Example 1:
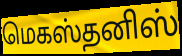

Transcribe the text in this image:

மெகஸ்தனிஸ்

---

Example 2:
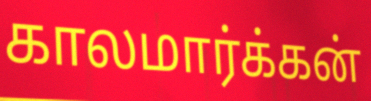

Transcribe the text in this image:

காலமார்க்கன்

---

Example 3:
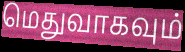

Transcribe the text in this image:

மெதுவாகவும்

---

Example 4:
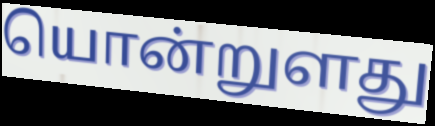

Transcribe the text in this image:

யொன்றுளது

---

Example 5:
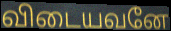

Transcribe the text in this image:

விடையவனே